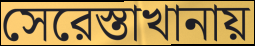
সেরেস্তাখানায়